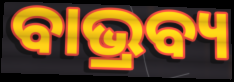
ବାଭ୍ରବ୍ୟ